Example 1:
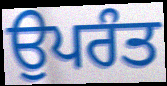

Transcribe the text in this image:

ਉਪਰੰਤ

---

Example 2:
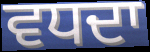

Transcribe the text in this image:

ਵਧਦਾ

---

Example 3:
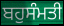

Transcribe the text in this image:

ਬਹੁਸੰਮਤੀ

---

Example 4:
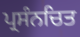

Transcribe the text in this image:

ਪ੍ਰਸੰਨਚਿਤ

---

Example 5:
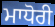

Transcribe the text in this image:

ਮਾਧੋਰੀ